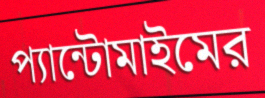
প্যান্টোমাইমের